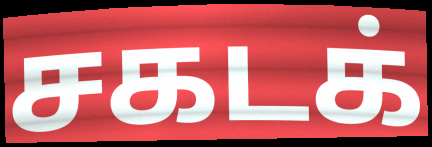
சகடக்